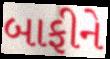
બાફીને